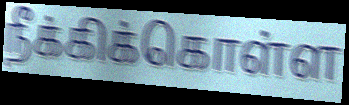
நீக்கிக்கொள்ள